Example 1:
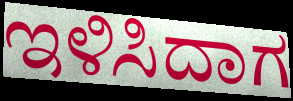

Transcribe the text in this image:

ಇಳಿಸಿದಾಗ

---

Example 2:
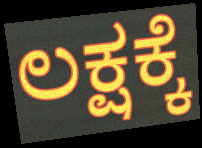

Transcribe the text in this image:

ಲಕ್ಷಕ್ಕೆ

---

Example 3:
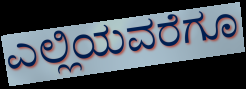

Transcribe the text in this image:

ಎಲ್ಲಿಯವರೆಗೂ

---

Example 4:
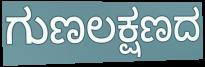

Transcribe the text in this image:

ಗುಣಲಕ್ಷಣದ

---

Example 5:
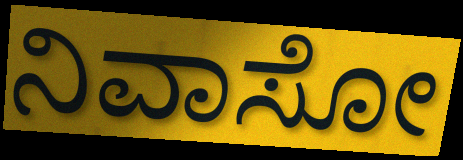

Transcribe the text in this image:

ನಿವಾಸೋ